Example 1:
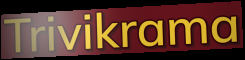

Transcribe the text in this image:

Trivikrama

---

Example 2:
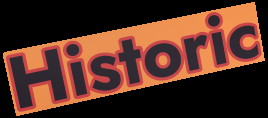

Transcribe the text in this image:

Historic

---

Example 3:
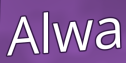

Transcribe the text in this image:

Alwa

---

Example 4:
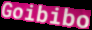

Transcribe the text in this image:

Goibibo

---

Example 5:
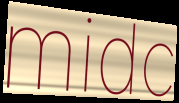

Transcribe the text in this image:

midc